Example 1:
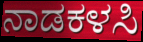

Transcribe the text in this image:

ನಾಡಕಳಸಿ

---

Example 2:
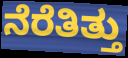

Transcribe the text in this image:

ನೆರೆತಿತ್ತು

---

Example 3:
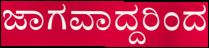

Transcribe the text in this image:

ಜಾಗವಾದ್ದರಿಂದ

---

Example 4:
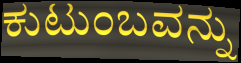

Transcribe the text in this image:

ಕುಟುಂಬವನ್ನು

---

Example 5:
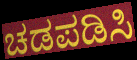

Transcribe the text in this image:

ಚಡಪಡಿಸಿ